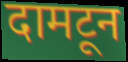
दामटून